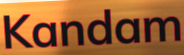
Kandam